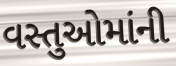
વસ્તુઓમાંની